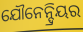
ଯୌନେନ୍ଦ୍ରିୟର